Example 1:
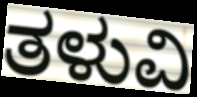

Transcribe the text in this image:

ತಳುವಿ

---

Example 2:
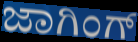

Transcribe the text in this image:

ಜಾಗಿಂಗ್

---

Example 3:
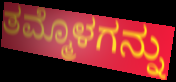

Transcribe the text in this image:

ತಮ್ಮೊಳಗನ್ನು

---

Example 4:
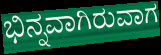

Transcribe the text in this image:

ಭಿನ್ನವಾಗಿರುವಾಗ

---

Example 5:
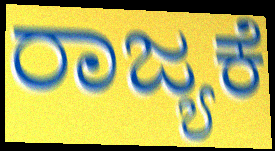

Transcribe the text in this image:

ರಾಜ್ಯಕೆ